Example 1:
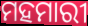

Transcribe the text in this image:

ମହମାରୀ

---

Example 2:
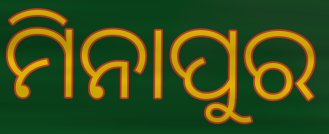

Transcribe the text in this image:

ମିନାପୁର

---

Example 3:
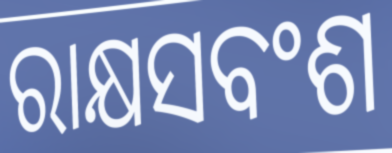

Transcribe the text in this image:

ରାକ୍ଷସବଂଶ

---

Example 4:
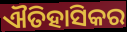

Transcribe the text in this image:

ଐତିହାସିକର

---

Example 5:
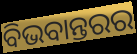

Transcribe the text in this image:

ବିଭବାନ୍ତରର